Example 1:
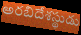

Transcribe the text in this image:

అరబిదేశస్థుడు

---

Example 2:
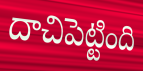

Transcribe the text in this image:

దాచిపెట్టింది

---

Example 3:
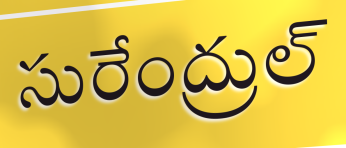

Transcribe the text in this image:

సురేంద్రుల్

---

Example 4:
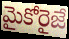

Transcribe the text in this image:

మైకోరైజే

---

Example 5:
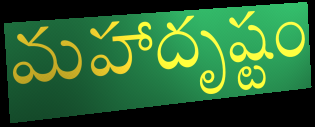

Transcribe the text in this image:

మహాదృష్టం